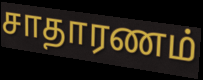
சாதாரணம்